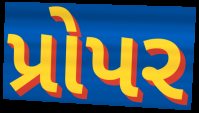
પ્રોપર